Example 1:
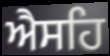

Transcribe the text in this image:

ਐਸਹਿ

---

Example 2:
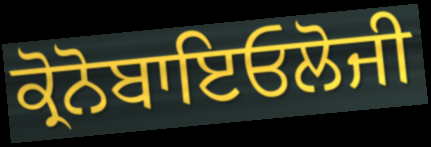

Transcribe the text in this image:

ਕ੍ਰੋਨੋਬਾਇਓਲੋਜੀ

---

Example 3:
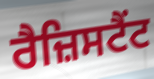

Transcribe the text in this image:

ਰੈਜ਼ਿਸਟੈਂਟ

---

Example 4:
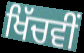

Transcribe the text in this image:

ਖਿੱਚਵੀਂ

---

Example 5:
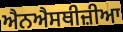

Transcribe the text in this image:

ਐਨਐਸਥੀਜ਼ੀਆ